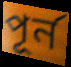
পূর্ন